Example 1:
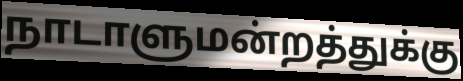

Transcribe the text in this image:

நாடாளுமன்றத்துக்கு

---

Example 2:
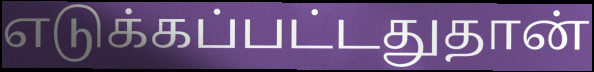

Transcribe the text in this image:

எடுக்கப்பட்டதுதான்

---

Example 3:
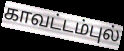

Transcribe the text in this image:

காவட்டம்புல்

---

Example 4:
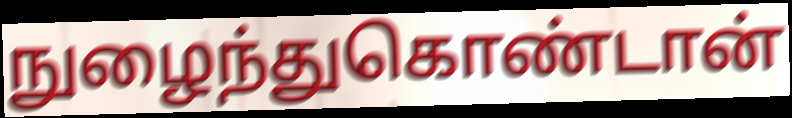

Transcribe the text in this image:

நுழைந்துகொண்டான்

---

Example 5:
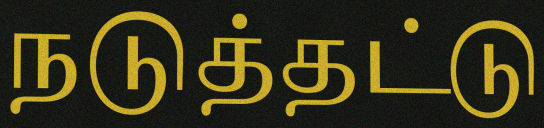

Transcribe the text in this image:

நடுத்தட்டு